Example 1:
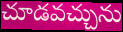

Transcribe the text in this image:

చూడవచ్చును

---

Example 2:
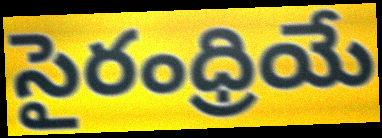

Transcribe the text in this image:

సైరంధ్రియే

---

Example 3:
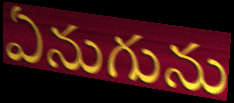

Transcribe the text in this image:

ఏనుగును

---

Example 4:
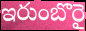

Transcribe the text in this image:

ఇరుంబొరై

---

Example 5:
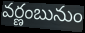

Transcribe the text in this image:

వర్ణంబునుం